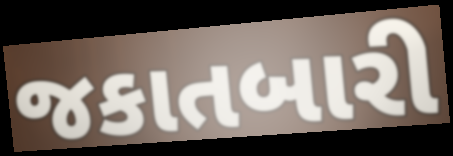
જકાતબારી